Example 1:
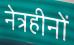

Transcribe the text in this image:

नेत्रहीनों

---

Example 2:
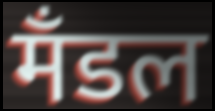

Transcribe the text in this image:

मँडल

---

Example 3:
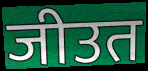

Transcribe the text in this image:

जीउत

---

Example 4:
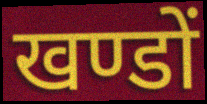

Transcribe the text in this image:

खण्डों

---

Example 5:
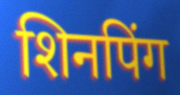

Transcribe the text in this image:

शिनपिंग